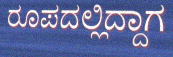
ರೂಪದಲ್ಲಿದ್ದಾಗ